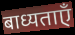
बाध्यताएँ